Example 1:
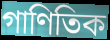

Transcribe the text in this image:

গাণিতিক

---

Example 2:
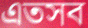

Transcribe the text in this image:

এতসব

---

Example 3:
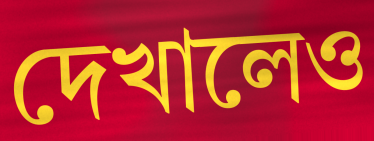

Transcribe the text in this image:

দেখালেও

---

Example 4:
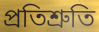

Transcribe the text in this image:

প্রতিশ্রুতি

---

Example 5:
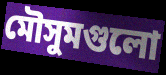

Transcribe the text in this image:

মৌসুমগুলো